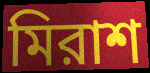
মিরাশ